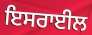
ਇਸਰਾਈਲ